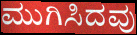
ಮುಗಿಸಿದವು